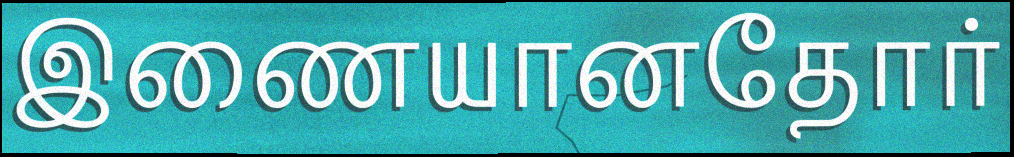
இணையானதோர்